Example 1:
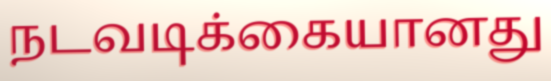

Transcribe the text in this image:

நடவடிக்கையானது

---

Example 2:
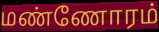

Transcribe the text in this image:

மண்ணோரம்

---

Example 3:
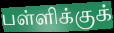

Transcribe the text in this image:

பள்ளிக்குக்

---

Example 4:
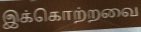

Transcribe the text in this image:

இக்கொற்றவை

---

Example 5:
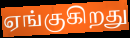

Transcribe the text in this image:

ஏங்குகிறது